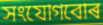
সংযোগবোৰ